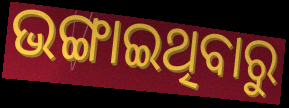
ଭଙ୍ଗାଇଥିବାରୁ